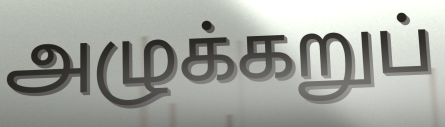
அழுக்கறுப்